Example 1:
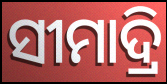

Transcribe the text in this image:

ସୀମାଦ୍ରି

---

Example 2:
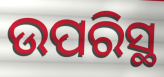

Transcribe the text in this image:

ଉପରିସ୍ଥ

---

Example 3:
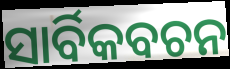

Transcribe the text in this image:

ସାର୍ବିକବଚନ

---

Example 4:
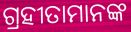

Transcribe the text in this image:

ଗ୍ରହୀତାମାନଙ୍କ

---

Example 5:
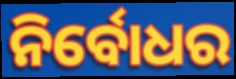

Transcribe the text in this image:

ନିର୍ବୋଧର